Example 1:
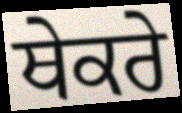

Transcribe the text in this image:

ਥੇਕਰੇ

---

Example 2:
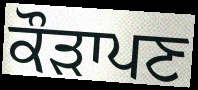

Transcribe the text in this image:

ਕੌੜਾਪਣ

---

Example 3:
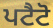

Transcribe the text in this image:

ਪਟੈਟੋ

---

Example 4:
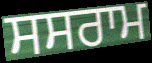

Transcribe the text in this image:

ਸਸਰਾਮ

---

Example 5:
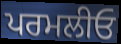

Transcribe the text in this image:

ਪਰਮਲੀਓ